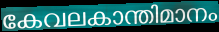
കേവലകാന്തിമാനം